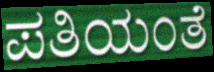
ಪತಿಯಂತೆ